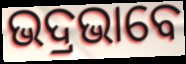
ଭଦ୍ରଭାବେ